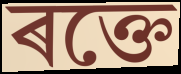
ৰক্তে